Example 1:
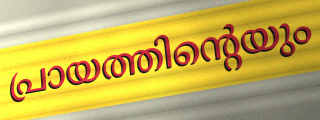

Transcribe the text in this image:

പ്രായത്തിന്റെയും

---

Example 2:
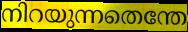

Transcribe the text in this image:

നിറയുന്നതെന്തേ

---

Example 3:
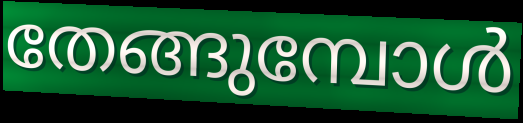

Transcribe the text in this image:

തേങ്ങുമ്പോൾ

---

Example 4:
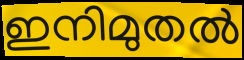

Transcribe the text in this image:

ഇനിമുതൽ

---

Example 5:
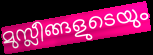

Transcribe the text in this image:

മുസ്ലീങ്ങളുടെയും